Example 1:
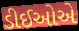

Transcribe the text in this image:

ડીઈઓએ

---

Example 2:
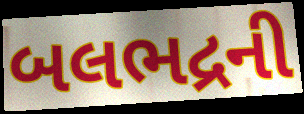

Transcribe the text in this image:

બલભદ્રની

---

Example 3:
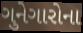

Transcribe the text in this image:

ગુનેગારોના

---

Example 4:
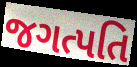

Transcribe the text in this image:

જગત્પતિ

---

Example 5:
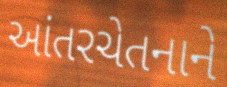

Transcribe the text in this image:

આંતરચેતનાને